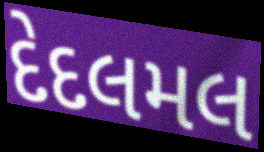
દેદલમલ